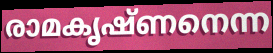
രാമകൃഷ്ണനെന്ന